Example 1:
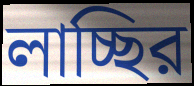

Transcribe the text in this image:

লাচ্ছির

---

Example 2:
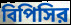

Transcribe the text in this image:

বিপিসির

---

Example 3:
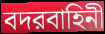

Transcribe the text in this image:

বদরবাহিনী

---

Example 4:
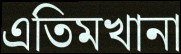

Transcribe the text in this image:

এতিমখানা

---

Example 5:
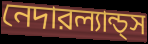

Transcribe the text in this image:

নেদারল্যান্ড্‌স